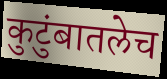
कुटुंबातलेच